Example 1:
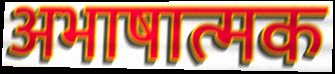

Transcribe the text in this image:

अभाषात्मक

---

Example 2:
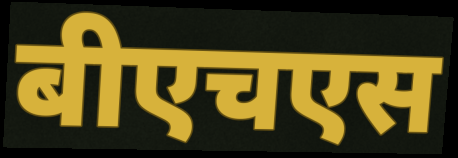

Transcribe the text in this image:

बीएचएस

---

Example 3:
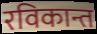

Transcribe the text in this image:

रविकान्त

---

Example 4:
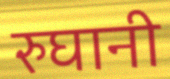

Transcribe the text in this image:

रुघानी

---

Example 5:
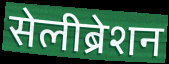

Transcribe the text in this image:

सेलीब्रेशन